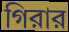
গিরার